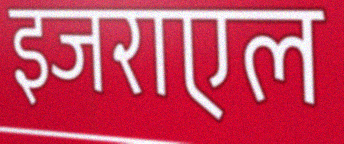
इजराएल